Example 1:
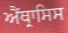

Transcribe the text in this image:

ਐਂਥ੍ਰਾਸਿਸ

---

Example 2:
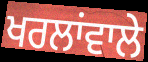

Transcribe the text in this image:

ਖਰਲਾਂਵਾਲੇ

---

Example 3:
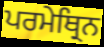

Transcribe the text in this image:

ਪਰਮੇਥ੍ਰਿਨ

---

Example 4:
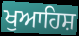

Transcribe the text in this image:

ਖੁਆਹਿਸ਼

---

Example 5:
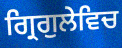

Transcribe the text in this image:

ਗ੍ਰਿਗੁਲੇਵਿਚ